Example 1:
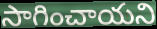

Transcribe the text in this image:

సాగించాయని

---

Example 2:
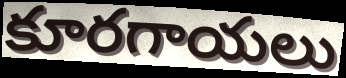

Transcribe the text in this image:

కూరగాయలు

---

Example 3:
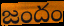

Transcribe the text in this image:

జందం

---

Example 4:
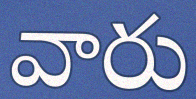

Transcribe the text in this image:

వారు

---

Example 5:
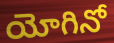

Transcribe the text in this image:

యోగినో